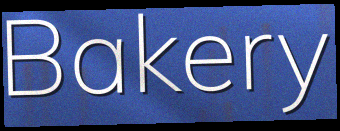
Bakery